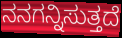
ನನಗನ್ನಿಸುತ್ತದೆ